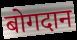
बोगदान